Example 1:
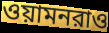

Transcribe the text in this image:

ওয়ামনরাও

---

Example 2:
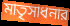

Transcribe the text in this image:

মাতৃসাধনার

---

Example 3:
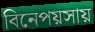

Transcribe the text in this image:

বিনেপয়সায়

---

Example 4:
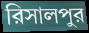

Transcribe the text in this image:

রিসালপুর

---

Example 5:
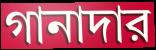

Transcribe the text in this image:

গানাদার